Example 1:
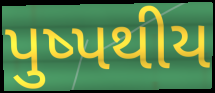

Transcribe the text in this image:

પુષ્પથીય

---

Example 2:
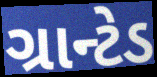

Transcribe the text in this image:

ગ્રાન્ટેડ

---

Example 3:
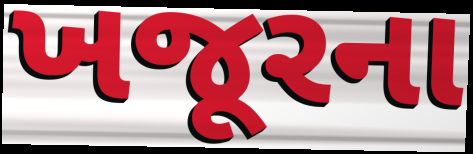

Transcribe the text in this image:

ખજૂરના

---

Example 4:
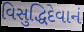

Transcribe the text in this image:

વિસુદ્ધિદેવાનં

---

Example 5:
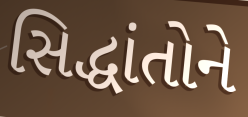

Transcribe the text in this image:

સિદ્ધાંતોને